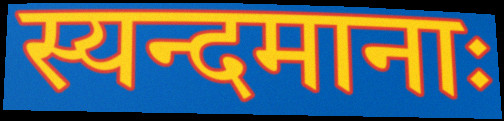
स्यन्दमानाः